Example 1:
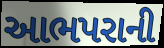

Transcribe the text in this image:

આભપરાની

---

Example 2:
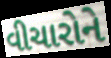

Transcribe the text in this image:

વીચારોને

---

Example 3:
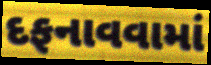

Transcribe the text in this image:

દફનાવવામાં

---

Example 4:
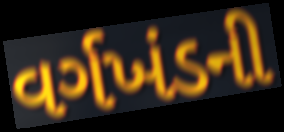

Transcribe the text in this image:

વર્ગખંડની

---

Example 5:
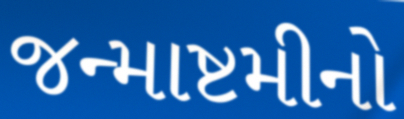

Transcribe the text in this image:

જન્માષ્ટમીનો